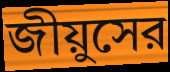
জীয়ুসের